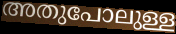
അതുപോലുള്ള